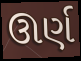
ઊર્ણ